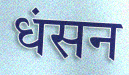
धंसन